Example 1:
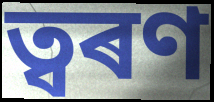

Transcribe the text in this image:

ত্বৰণ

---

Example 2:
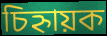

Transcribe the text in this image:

চিহ্নায়ক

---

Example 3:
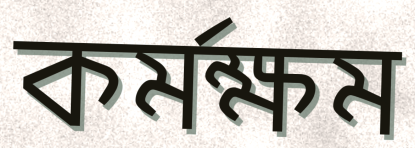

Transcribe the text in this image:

কৰ্মক্ষম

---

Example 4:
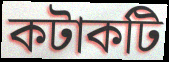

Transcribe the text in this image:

কটাকটি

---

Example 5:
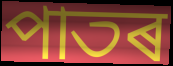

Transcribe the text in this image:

পাতৰ